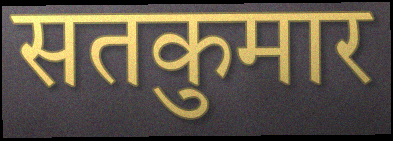
सतकुमार